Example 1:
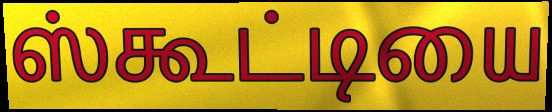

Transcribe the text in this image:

ஸ்கூட்டியை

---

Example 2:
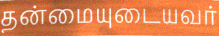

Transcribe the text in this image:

தன்மையுடையவர்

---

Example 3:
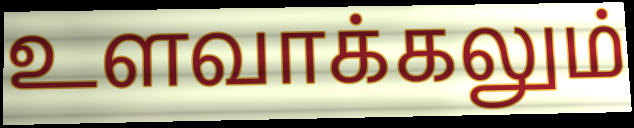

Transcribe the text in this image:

உளவாக்கலும்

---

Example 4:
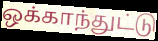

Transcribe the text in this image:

ஒக்காந்துட்டு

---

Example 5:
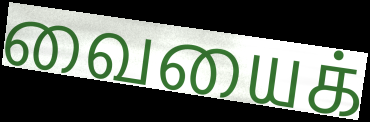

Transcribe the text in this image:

வையைக்